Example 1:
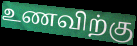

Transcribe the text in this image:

உணவிற்கு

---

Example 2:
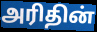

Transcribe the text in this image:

அரிதின்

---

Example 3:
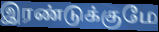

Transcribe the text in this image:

இரண்டுக்குமே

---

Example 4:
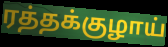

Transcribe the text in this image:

ரத்தக்குழாய்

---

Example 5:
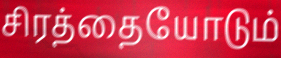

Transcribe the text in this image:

சிரத்தையோடும்